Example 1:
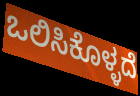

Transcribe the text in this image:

ಒಲಿಸಿಕೊಳ್ಳದೆ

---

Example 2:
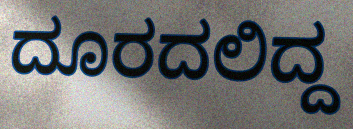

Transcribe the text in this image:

ದೂರದಲಿದ್ದ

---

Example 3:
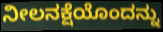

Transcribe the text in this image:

ನೀಲನಕ್ಷೆಯೊಂದನ್ನು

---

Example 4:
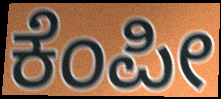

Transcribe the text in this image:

ಕೆಂಪೀ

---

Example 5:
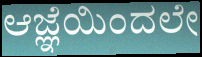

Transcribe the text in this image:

ಆಜ್ಞೆಯಿಂದಲೇ